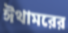
ঈথামরের